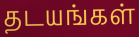
தடயங்கள்